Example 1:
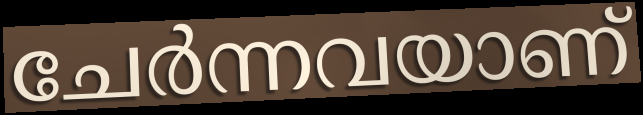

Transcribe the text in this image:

ചേർന്നവയാണ്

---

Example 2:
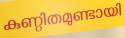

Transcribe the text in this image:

കുണ്ഠിതമുണ്ടായി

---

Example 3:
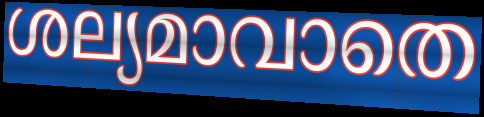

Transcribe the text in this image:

ശല്യമാവാതെ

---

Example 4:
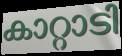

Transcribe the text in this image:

കാറ്റാടി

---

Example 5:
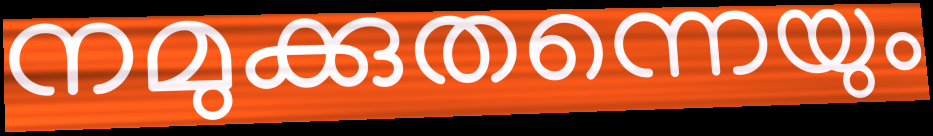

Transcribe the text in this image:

നമുക്കുതന്നെയും